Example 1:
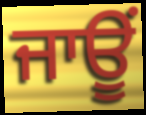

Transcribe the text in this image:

ਜਾਊਂ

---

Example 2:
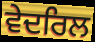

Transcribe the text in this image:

ਵੇਦਰਿਲ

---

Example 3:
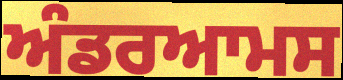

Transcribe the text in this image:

ਅੰਡਰਆਮਸ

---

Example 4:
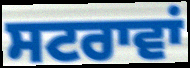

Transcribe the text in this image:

ਸਟਰਾਵਾਂ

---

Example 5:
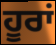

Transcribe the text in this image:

ਹੂਰਾਂ